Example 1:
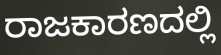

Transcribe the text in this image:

ರಾಜಕಾರಣದಲ್ಲಿ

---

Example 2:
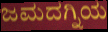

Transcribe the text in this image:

ಜಮದಗ್ನಿಯ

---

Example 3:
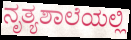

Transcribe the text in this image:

ನೃತ್ಯಶಾಲೆಯಲ್ಲಿ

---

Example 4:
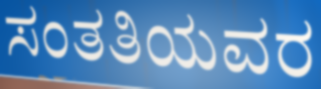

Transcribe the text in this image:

ಸಂತತಿಯವರ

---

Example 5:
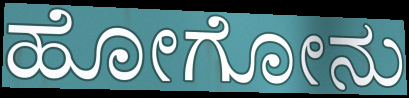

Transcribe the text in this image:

ಹೋಗೋನು